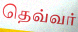
தெவ்வர்